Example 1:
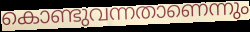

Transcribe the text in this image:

കൊണ്ടുവന്നതാണെന്നും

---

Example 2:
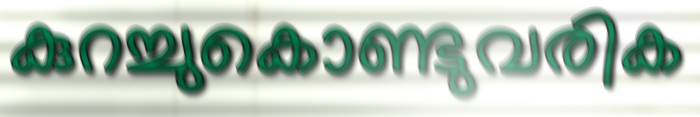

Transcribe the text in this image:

കുറച്ചുകൊണ്ടുവരിക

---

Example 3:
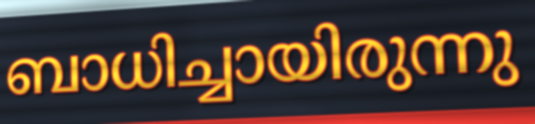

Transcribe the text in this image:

ബാധിച്ചായിരുന്നു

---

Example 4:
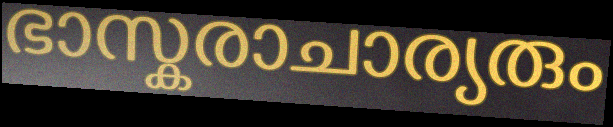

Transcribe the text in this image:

ഭാസ്കരാചാര്യരും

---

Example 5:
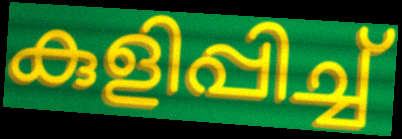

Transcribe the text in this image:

കുളിപ്പിച്ച്